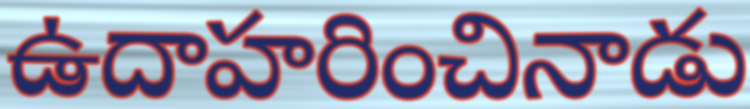
ఉదాహరించినాడు